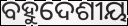
ବହୁଦେଶୀୟ